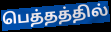
பெத்தத்தில்